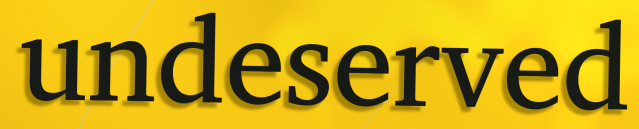
undeserved